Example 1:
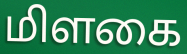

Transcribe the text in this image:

மிளகை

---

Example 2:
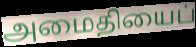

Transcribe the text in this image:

அமைதியைப்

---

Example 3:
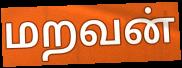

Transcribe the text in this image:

மறவன்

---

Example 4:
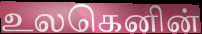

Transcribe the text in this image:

உலகெனின்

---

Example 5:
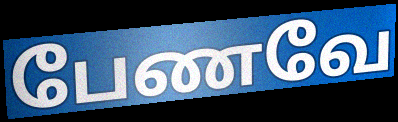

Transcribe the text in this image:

பேணவே